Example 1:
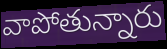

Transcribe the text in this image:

వాపోతున్నారు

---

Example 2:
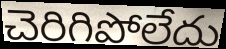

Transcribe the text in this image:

చెరిగిపోలేదు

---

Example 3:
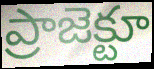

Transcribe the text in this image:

ప్రాజెక్టూ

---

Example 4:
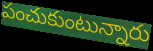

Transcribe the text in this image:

పంచుకుంటున్నారు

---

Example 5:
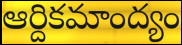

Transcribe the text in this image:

ఆర్దికమాంద్యం